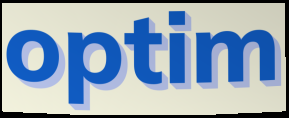
optim